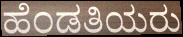
ಹೆಂಡತಿಯರು